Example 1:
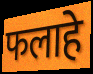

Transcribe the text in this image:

फलाहे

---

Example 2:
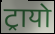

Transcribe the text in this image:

ट्रायो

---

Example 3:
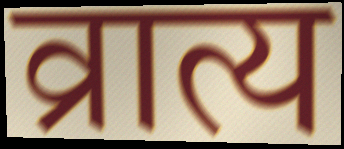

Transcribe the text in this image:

व्रात्य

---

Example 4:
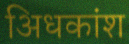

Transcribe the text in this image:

अिधकांश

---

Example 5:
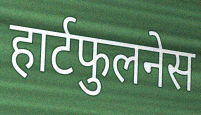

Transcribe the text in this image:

हार्टफुलनेस